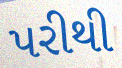
પરીથી